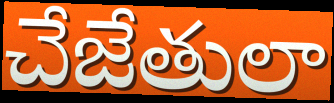
చేజేతులా